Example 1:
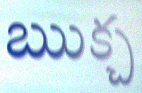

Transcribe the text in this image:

ఋక్చ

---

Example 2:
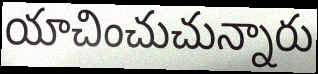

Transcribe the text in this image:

యాచించుచున్నారు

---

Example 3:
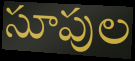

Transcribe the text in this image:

సూపుల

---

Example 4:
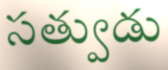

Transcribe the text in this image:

సత్వుడు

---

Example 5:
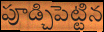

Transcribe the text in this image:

పూడ్చిపెట్టిన